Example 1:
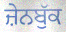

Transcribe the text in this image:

ਜ਼ੇਨਬੁੱਕ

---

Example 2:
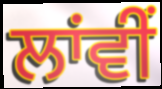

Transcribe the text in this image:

ਲਾਂਵੀਂ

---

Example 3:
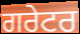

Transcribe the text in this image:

ਗਰੇਟਰ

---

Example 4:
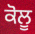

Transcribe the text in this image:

ਕੋਲੂ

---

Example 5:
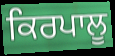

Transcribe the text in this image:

ਕਿਰਪਾਲੂ